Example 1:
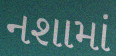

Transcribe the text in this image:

નશામાં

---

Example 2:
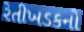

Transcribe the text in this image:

રેતીખડકનો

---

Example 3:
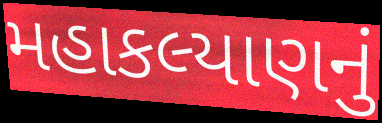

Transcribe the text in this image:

મહાકલ્યાણનું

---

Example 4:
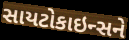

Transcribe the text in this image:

સાયટોકાઇન્સને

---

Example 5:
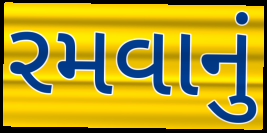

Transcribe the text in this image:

રમવાનું